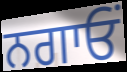
ਨਗਾਓਂ